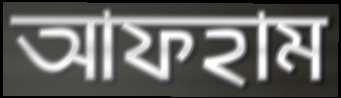
আফহাম